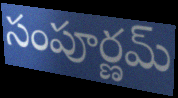
సంపూర్ణమ్